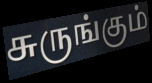
சுருங்கும்